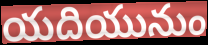
యదియునుం